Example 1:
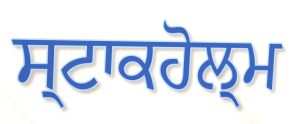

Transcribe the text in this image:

ਸ੍ਟਾਕਹੋਲ੍ਮ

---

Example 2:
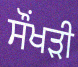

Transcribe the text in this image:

ਸੌਂਖੜੀ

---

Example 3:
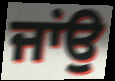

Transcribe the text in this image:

ਜਾਂਉ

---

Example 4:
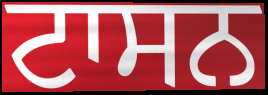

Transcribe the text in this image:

ਟਾਸਨ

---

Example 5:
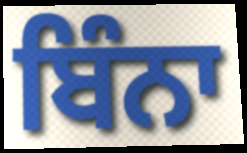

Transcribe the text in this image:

ਬਿੰਨਾ